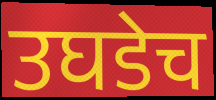
उघडेच